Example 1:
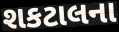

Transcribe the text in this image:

શકટાલના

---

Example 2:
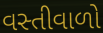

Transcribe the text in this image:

વસ્તીવાળો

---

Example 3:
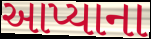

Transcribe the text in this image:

આપ્યાના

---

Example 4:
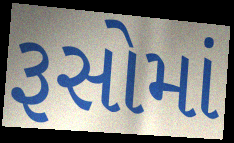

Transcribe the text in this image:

રૂસોમાં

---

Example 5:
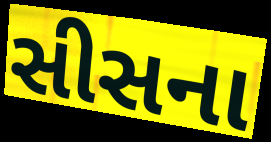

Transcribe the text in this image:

સીસના